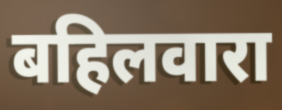
बहिलवारा